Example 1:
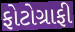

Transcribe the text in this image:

ફોટોગ્રાફી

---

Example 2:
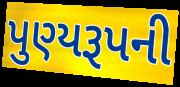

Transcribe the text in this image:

પુણ્યરૂપની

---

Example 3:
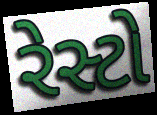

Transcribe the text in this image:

રેસ્ટો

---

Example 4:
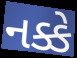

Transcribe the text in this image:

નક્કે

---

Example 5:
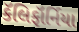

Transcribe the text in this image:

કૅલિફૉર્નિયા